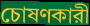
চোষণকারী